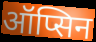
ऑप्सिन